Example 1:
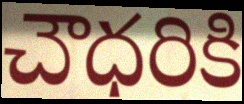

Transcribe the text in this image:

చౌధరికి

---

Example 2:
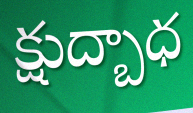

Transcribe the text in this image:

క్షుద్బాధ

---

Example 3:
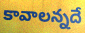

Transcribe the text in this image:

కావాలన్నదే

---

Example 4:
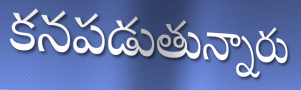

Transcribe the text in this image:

కనపడుతున్నారు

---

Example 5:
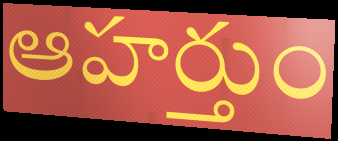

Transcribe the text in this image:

ఆహర్తుం